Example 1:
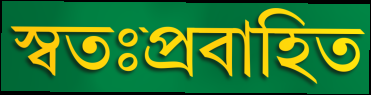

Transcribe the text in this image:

স্বতঃপ্রবাহিত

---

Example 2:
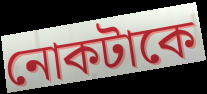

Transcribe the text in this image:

নোকটাকে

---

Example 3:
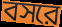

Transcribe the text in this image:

বসরে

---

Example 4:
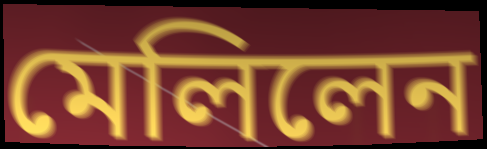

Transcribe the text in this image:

মেলিলেন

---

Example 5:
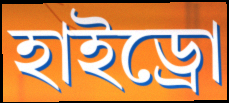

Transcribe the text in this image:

হাইড্রো